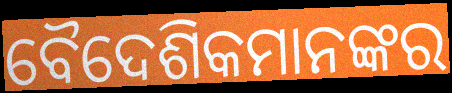
ବୈଦେଶିକମାନଙ୍କର